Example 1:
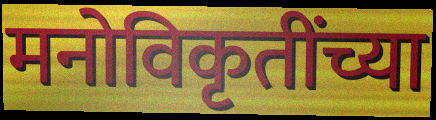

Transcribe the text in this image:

मनोविकृतींच्या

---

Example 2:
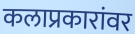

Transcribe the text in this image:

कलाप्रकारांवर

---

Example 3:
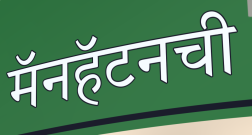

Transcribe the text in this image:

मॅनहॅटनची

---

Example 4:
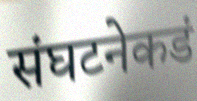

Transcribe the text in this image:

संघटनेकडं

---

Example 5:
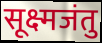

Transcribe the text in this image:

सूक्ष्मजंतु